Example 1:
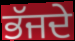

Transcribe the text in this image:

ਭੱਜਦੇ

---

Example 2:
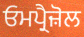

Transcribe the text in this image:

ਓਮਪ੍ਰੈਜ਼ੋਲ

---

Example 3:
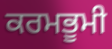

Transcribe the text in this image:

ਕਰਮਭੂਮੀ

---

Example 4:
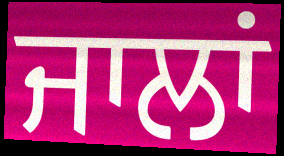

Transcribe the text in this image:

ਜਾਲਾਂ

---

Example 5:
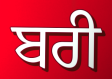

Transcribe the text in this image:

ਬਰੀ